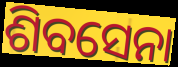
ଶିବସେନା